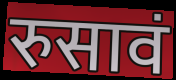
रुसावं